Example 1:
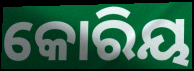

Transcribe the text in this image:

କୋରିୟ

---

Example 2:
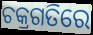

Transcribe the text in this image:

ଚକ୍ରଗତିରେ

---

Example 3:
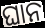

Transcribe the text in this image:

ଘାନ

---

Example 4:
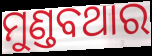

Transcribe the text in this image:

ମୁଣ୍ଡବଥାର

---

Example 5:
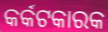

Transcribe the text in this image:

କର୍କଟକାରକ